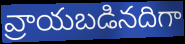
వ్రాయబడినదిగా